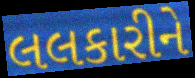
લલકારીને